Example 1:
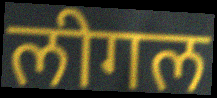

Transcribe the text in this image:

लीगल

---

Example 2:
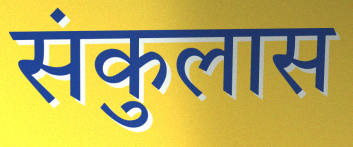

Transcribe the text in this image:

संकुलास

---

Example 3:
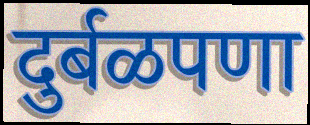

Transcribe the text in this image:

दुर्बळपणा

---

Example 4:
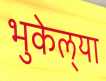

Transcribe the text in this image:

भुकेल्या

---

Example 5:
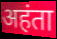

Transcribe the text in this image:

अहंता